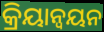
କ୍ରିୟାନ୍ଵୟନ